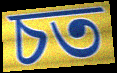
চত